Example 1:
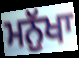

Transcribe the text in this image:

ਮਨੁੱਖਾ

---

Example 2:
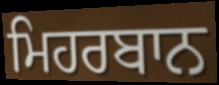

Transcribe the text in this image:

ਮਿਹਰਬਾਨ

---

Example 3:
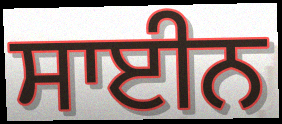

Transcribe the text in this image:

ਸਾਈਨ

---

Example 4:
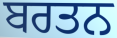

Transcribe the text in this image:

ਬਰਤਨ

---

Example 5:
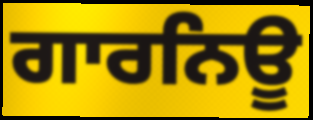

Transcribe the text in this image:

ਗਾਰਨਿਊ